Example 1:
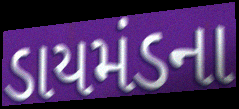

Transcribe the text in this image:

ડાયમંડના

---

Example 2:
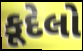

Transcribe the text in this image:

કૂદેલો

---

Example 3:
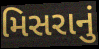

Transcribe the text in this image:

મિસરાનું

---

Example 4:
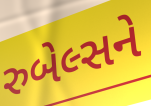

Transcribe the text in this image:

રુબેલ્સને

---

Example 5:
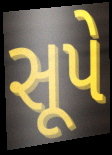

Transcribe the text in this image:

સૂપે